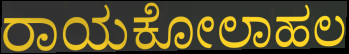
ರಾಯಕೋಲಾಹಲ